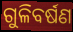
ଗୁଳିବର୍ଷଣ